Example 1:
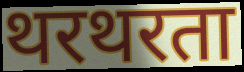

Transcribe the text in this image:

थरथरता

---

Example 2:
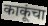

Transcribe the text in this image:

काकूंचा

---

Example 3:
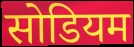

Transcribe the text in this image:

सोडियम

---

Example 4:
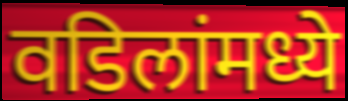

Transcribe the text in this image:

वडिलांमध्ये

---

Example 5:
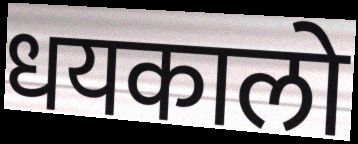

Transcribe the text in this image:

धयकालो